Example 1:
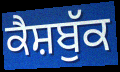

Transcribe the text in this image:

ਕੈਸ਼ਬੁੱਕ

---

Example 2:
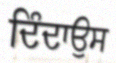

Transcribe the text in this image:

ਦਿੰਦਾਉਸ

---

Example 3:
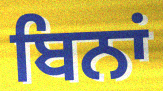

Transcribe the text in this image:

ਬਿਨਾਂ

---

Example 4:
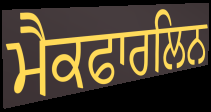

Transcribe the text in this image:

ਮੈਕਫਾਰਲਿਨ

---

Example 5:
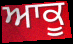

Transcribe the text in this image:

ਆਕੂ